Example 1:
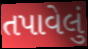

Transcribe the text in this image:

તપાવેલું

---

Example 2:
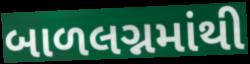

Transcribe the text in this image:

બાળલગ્નમાંથી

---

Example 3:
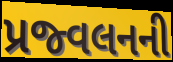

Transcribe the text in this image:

પ્રજ્વલનની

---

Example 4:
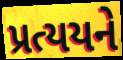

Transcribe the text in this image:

પ્રત્યયને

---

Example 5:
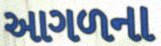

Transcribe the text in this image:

આગળના